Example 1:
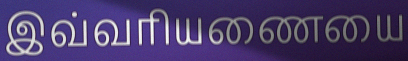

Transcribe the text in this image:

இவ்வரியணையை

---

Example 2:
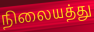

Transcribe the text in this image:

நிலையத்து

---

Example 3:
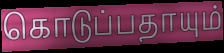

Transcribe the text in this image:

கொடுப்பதாயும்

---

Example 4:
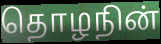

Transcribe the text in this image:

தொழநின்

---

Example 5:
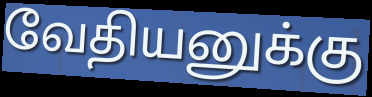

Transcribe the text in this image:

வேதியனுக்கு